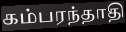
கம்பரந்தாதி